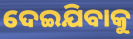
ଦେଇଯିବାକୁ